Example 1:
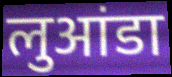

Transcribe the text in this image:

लुआंडा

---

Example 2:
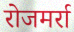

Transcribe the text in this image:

रोजमर्रा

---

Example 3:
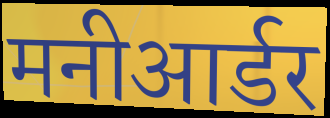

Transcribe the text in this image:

मनीआर्डर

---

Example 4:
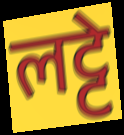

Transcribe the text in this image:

लट्टे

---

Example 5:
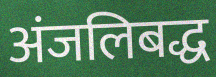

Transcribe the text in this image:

अंजलिबद्ध